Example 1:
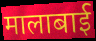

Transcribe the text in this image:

मालाबाई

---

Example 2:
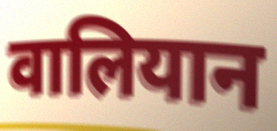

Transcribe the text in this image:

वालियान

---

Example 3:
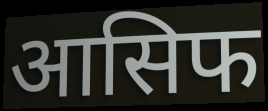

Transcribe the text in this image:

आसिफ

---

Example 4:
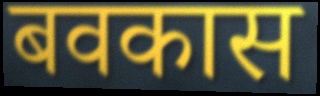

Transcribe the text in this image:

बवकास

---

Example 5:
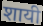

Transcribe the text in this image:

शायी